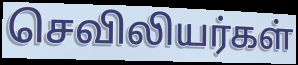
செவிலியர்கள்